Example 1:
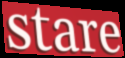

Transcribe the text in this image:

stare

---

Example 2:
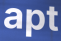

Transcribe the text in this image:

apt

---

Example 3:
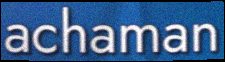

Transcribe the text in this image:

achaman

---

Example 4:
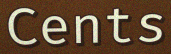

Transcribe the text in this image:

Cents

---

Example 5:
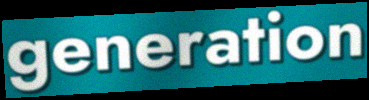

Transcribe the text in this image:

generation